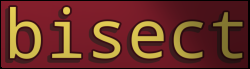
bisect